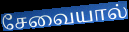
சேவையால்